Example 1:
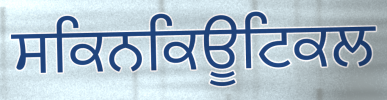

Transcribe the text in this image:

ਸਕਿਨਕਿਊਟਿਕਲ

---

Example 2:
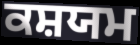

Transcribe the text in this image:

ਕਸ਼ਯਮ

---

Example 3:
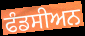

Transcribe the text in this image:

ਫੰਡਸੀਅਨ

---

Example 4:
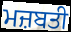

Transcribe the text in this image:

ਮਜ਼ਬਤੀ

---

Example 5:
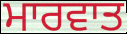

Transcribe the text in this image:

ਮਾਰਵਾਤ